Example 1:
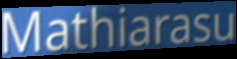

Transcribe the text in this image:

Mathiarasu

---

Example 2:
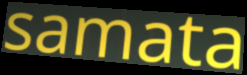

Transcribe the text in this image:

samata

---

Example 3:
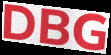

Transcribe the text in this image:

DBG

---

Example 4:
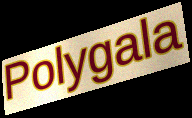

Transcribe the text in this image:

Polygala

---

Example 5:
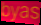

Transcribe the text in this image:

byas